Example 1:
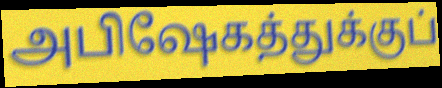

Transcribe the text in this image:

அபிஷேகத்துக்குப்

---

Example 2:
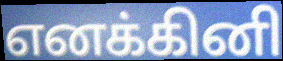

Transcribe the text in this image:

எனக்கினி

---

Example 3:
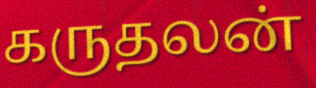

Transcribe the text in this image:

கருதலன்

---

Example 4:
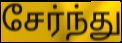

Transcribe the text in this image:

சேர்ந்து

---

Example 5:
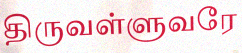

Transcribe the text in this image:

திருவள்ளுவரே